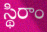
స్థిరాం